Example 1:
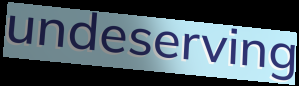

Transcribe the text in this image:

undeserving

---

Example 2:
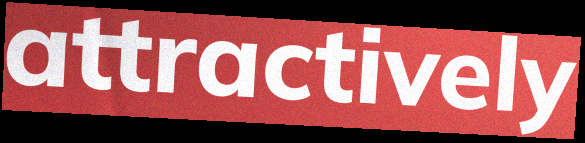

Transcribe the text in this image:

attractively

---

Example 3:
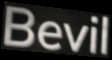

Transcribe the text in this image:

Bevil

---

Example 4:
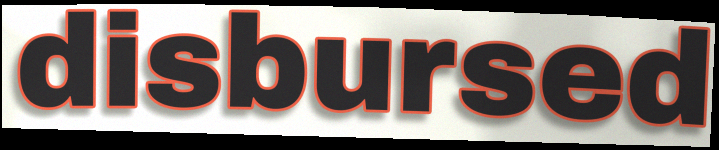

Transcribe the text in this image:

disbursed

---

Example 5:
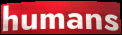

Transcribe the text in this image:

humans